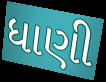
ધાણી